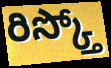
రిస్క్తో